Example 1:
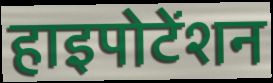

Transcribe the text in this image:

हाइपोटेंशन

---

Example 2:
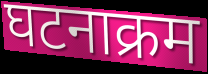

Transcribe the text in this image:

घटनाक्रम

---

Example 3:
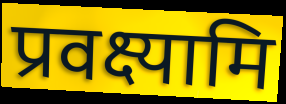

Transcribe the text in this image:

प्रवक्ष्यामि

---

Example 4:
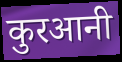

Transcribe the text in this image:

कुरआनी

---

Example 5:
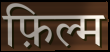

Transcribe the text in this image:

फ़िल्म